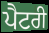
ਪੈਟਰੀ